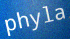
phyla